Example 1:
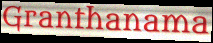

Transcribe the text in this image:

Granthanama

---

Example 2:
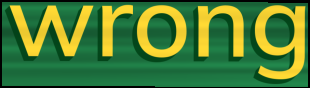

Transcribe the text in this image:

wrong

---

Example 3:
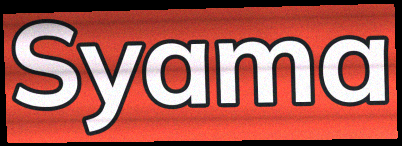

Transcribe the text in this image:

Syama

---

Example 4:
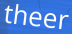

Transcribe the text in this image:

theer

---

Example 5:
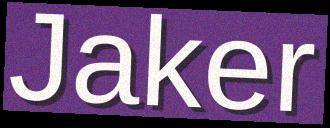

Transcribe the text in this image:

Jaker